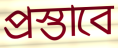
প্রস্তাবে